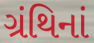
ગ્રંથિનાં